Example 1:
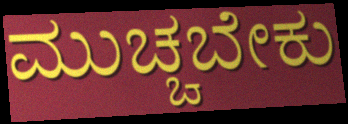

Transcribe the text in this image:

ಮುಚ್ಚಬೇಕು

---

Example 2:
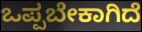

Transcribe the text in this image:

ಒಪ್ಪಬೇಕಾಗಿದೆ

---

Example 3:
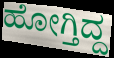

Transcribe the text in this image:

ಹೋಗ್ತಿದ್ದ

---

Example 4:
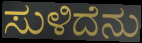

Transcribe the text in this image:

ಸುಳಿದೆನು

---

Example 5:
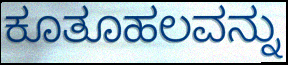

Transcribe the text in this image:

ಕೂತೂಹಲವನ್ನು